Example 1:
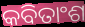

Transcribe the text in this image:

କବିତାଂଶ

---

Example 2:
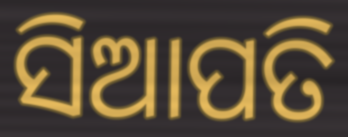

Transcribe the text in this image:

ସିଆପତି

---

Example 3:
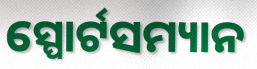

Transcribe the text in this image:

ସ୍ପୋର୍ଟସମ୍ୟାନ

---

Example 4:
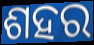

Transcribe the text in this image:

ଶହର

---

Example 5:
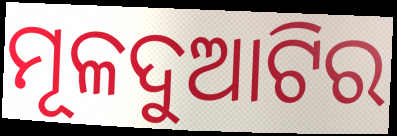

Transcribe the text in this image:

ମୂଳଦୁଆଟିର